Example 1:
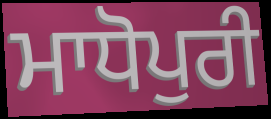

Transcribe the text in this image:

ਮਾਧੋਪੁਰੀ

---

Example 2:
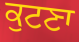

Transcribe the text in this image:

ਕੁਟਣਾ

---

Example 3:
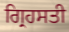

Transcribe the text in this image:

ਗ੍ਰਿਹਸਤੀ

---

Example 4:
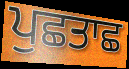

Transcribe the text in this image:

ਪੁਛਤਾਛ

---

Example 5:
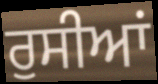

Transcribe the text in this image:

ਰੁਸੀਆਂ